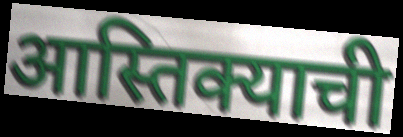
आस्तिक्याची